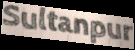
Sultanpur